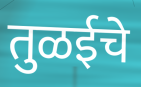
तुळईचे